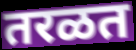
तरळत